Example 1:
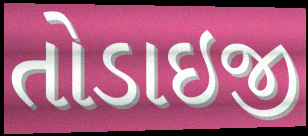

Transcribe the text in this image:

તોડાઇજી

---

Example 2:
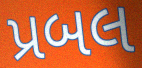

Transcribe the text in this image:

પ્રબલ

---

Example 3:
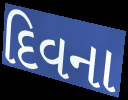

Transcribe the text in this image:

દિવના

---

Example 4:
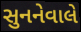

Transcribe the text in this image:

સુનનેવાલે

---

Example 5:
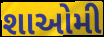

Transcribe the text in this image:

શાઓમી